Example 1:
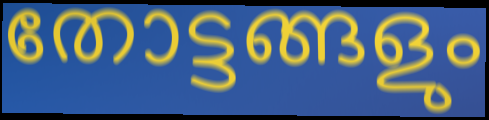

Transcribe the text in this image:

തോട്ടങ്ങളും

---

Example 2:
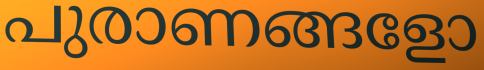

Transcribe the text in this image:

പുരാണങ്ങളോ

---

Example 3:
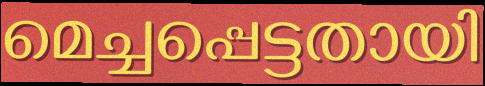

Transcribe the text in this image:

മെച്ചപ്പെട്ടതായി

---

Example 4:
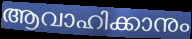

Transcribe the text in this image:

ആവാഹിക്കാനും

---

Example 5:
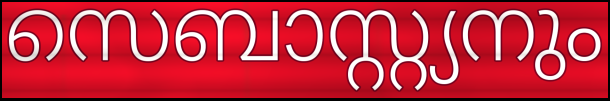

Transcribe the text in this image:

സെബാസ്റ്റ്യനും